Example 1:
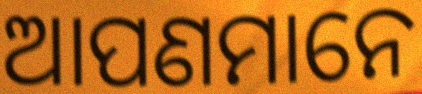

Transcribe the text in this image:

ଆପଣମାନେ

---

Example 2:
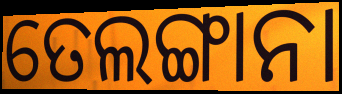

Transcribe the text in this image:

ତେଲଙ୍ଗାନା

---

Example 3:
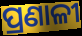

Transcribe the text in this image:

ପ୍ରଣାଳୀ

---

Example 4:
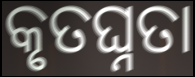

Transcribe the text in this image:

କୃତଘ୍ନତା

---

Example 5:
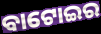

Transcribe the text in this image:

ବାଟୋଇର